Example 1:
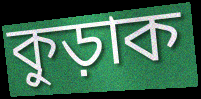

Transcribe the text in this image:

কুড়াক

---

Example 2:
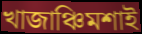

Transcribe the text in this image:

খাজাঞ্চিমশাই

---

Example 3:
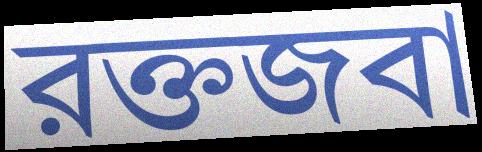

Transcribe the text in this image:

রক্তজবা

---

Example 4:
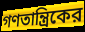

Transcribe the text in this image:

গণতান্ত্রিকের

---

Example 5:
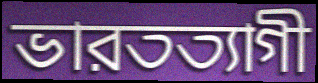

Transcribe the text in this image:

ভারতত্যাগী